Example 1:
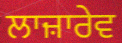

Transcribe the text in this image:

ਲਾਜ਼ਾਰੇਵ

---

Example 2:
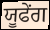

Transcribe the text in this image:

ਯੂਫੇਂਗ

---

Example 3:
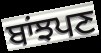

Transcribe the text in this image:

ਬਾਂਝਪਣ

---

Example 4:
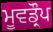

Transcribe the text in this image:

ਮੂਵਡ੍ਰੌਪ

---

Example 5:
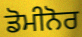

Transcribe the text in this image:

ਡੋਮੀਨੋਰ